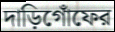
দাড়িগোঁফের